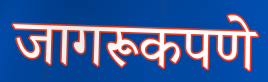
जागरूकपणे